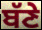
ਬੱਣੇ